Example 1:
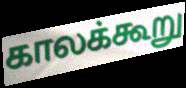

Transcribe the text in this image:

காலக்கூறு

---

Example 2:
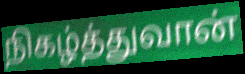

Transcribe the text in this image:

நிகழ்த்துவான்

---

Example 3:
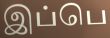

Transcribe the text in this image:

இப்பெ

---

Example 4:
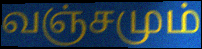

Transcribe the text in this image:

வஞ்சமும்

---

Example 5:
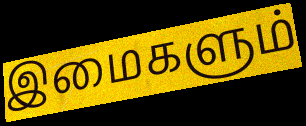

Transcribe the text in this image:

இமைகளும்